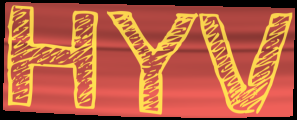
HYV